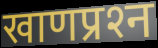
खाणप्रश्न